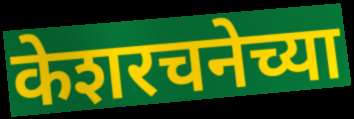
केशरचनेच्या